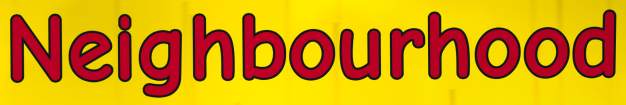
Neighbourhood